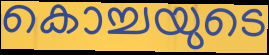
കൊച്ചയുടെ